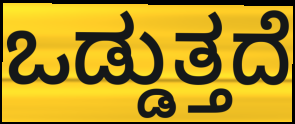
ಒಡ್ಡುತ್ತದೆ